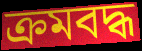
ক্ৰমবদ্ধ